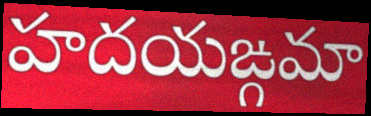
హదయఙ్గమా